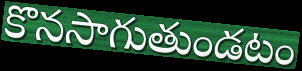
కొనసాగుతుండటం